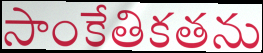
సాంకేతికతను